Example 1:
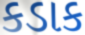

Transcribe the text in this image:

કડાક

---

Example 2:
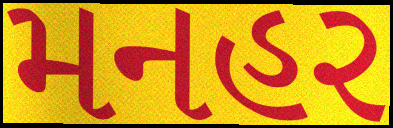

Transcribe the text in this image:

મનહર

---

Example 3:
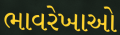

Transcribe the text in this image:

ભાવરેખાઓ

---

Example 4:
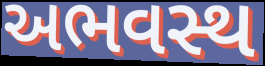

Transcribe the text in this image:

અભવસ્થ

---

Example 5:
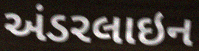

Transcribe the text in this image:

અંડરલાઇન